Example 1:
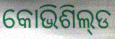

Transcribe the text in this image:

କୋଭିଶିଲ୍‌ଡ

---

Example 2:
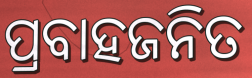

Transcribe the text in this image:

ପ୍ରବାହଜନିତ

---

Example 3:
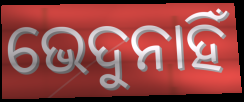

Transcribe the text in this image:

ଭେଦୁନାହିଁ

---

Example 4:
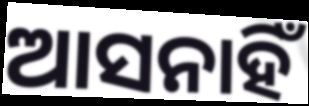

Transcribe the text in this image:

ଆସନାହିଁ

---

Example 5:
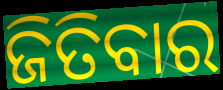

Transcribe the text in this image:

ଜିତିବାର